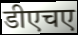
डीएचए